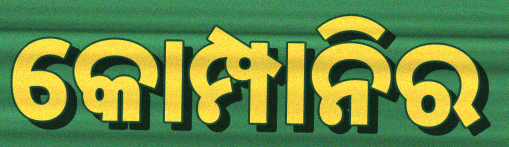
କୋମ୍ପାନିର